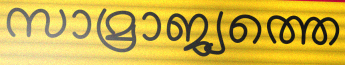
സാമ്രാജ്യത്തെ